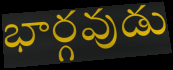
భార్గవుడు